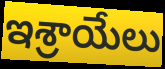
ఇశ్రాయేలు